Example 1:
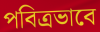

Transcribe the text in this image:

পবিত্রভাবে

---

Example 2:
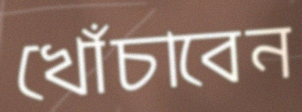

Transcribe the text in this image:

খোঁচাবেন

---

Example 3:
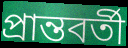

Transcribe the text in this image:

প্রান্তবর্তী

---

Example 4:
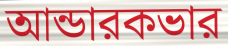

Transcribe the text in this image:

আন্ডারকভার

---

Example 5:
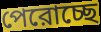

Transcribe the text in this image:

পেরোচ্ছে